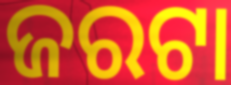
ଜରଟା